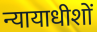
न्यायाधीशों